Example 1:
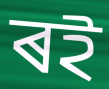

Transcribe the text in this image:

ৰই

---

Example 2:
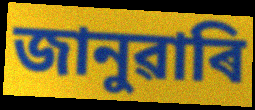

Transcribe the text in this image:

জানুৱাৰি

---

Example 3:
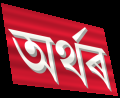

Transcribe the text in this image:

অৰ্থৰ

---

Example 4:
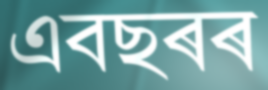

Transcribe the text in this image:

এবছৰৰ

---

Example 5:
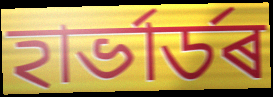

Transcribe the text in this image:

হাৰ্ভাৰ্ডৰ